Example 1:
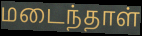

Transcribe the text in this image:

மடைந்தாள்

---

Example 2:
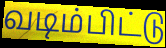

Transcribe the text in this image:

வடிம்பிட்டு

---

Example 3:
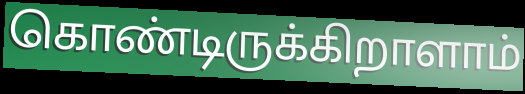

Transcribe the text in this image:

கொண்டிருக்கிறாளாம்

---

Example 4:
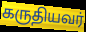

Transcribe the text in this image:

கருதியவர்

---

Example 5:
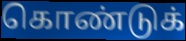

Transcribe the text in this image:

கொண்டுக்